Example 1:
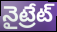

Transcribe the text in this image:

నైట్రేట్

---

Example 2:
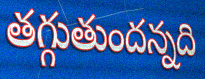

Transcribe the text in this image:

తగ్గుతుందన్నది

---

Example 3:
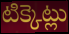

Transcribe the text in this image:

టిక్కెట్లు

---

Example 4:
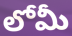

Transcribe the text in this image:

లోమీ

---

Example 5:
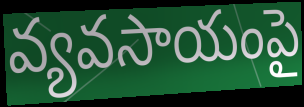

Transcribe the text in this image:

వ్యవసాయంపై